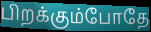
பிறக்கும்போதே